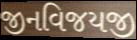
જીનવિજયજી